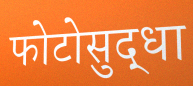
फोटोसुद्धा